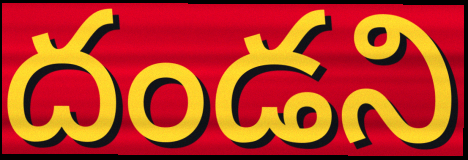
దండని